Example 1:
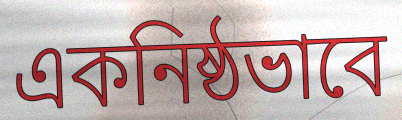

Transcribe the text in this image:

একনিষ্ঠভাবে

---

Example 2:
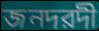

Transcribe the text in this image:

জনদরদী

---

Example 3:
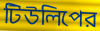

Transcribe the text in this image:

টিউলিপের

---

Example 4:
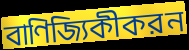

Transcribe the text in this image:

বাণিজ্যিকীকরন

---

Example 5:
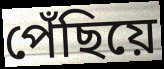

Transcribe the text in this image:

পেঁছিয়ে